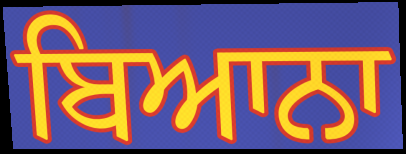
ਬਿਆਨਾ